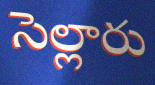
సెల్లారు